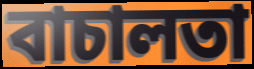
বাচালতা